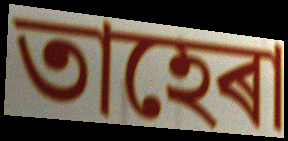
তাহেৰা